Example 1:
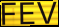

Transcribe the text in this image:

FEV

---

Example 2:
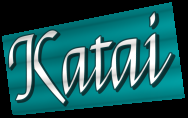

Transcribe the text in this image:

Katai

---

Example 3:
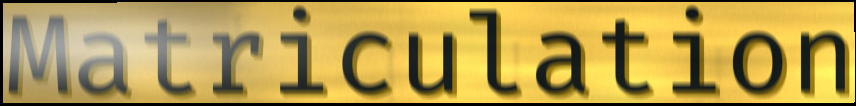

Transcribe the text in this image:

Matriculation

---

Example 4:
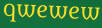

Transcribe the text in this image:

qwewew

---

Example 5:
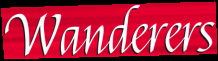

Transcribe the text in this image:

Wanderers